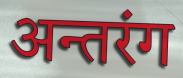
अन्तरंग